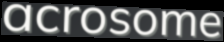
acrosome